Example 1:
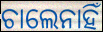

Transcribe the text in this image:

ଚାଲେନାହିଁ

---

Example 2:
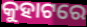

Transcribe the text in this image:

କୁହାଟରେ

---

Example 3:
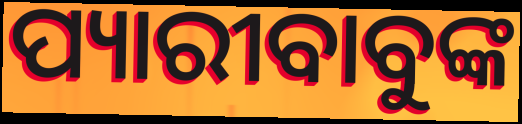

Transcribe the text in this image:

ପ୍ୟାରୀବାବୁଙ୍କ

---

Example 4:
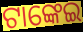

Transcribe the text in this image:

ଟାଙ୍କେଇ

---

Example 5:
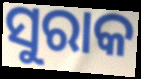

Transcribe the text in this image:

ସୁରାକ